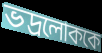
ভদ্রলোককে